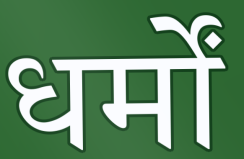
धर्मों